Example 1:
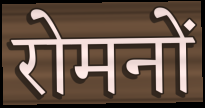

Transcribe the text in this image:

रोमनों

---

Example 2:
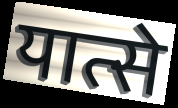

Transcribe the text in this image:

यात्से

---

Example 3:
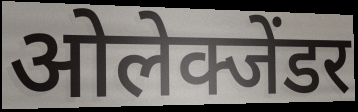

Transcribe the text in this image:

ओलेक्जेंडर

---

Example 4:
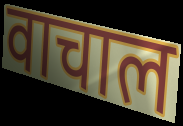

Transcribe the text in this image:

वाचाल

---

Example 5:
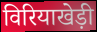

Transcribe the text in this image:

विरियाखेड़ी